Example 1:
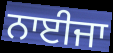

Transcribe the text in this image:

ਨਾਈਜਾ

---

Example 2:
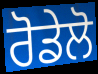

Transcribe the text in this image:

ਰੋਡੇਲੋ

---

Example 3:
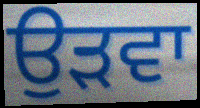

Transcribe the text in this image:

ਉੜਵਾ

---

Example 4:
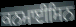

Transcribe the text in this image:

ਕਨਮਾਈਸਿਨ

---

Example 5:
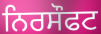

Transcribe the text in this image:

ਨਿਰਸੌਫਟ